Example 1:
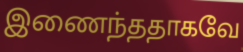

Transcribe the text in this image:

இணைந்ததாகவே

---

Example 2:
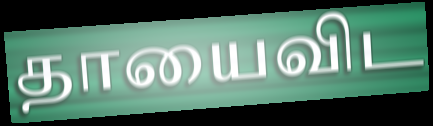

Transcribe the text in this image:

தாயைவிட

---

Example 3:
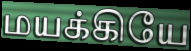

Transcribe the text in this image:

மயக்கியே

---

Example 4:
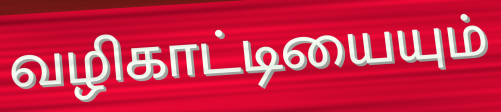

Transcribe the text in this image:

வழிகாட்டியையும்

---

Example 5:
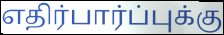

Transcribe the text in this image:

எதிர்பார்ப்புக்கு